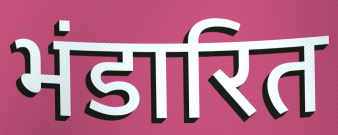
भंडारित